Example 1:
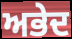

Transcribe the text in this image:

ਅਭੇਦ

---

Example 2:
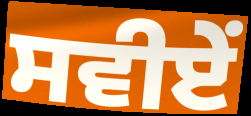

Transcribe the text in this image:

ਸਵੀਏਂ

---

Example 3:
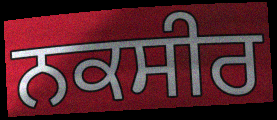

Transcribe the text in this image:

ਨਕਸੀਰ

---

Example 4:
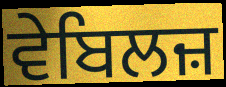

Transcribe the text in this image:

ਵੇਬਿਲਜ਼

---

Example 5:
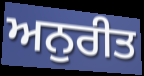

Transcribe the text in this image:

ਅਨੁਰੀਤ